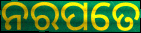
ନରପତେ